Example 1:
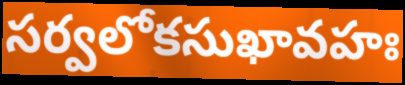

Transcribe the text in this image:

సర్వలోకసుఖావహః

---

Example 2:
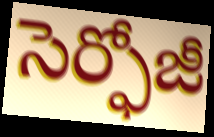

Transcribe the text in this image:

సెర్ఫోజీ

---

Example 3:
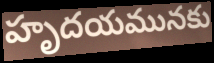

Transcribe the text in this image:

హృదయమునకు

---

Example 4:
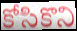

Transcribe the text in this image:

కోసికొని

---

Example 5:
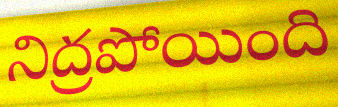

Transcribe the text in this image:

నిద్రపోయింది